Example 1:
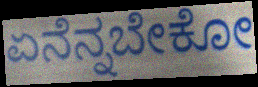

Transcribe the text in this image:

ಏನೆನ್ನಬೇಕೋ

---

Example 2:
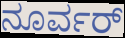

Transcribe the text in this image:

ನೂರ್ವರ್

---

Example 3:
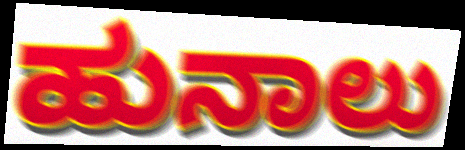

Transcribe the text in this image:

ಹುನಾಲು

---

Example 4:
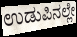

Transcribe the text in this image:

ಉಡುಪಿನಲ್ಲೇ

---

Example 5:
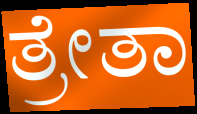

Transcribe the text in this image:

ತ್ರೇತಾ